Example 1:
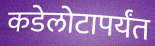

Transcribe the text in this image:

कडेलोटापर्यंत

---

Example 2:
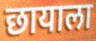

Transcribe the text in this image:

छायाला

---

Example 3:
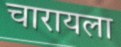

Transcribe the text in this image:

चारायला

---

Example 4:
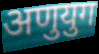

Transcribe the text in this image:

अणुयुग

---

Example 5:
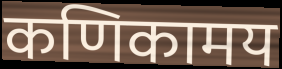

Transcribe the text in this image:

कणिकामय